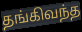
தங்கிவந்த